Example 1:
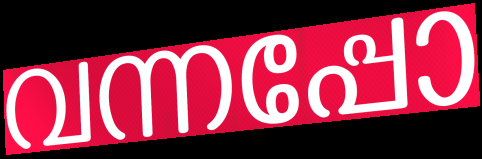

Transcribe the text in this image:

വന്നപ്പോ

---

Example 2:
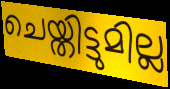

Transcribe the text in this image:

ചെയ്തിട്ടുമില്ല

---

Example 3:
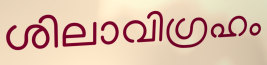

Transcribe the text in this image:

ശിലാവിഗ്രഹം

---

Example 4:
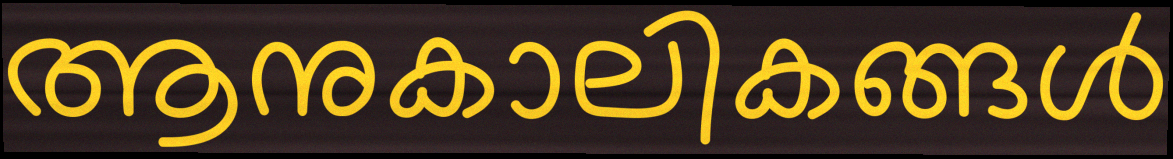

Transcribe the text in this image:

ആനുകാലികങ്ങൾ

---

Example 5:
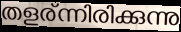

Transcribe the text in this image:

തളര്ന്നിരിക്കുന്നു